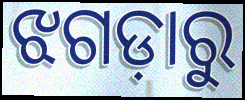
ଝଗଡ଼ାରୁ